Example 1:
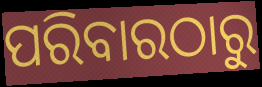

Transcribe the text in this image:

ପରିବାରଠାରୁ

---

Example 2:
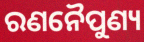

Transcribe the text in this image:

ରଣନୈପୁଣ୍ୟ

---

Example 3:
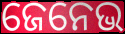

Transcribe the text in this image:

ଜେନେଭ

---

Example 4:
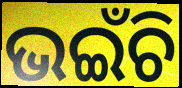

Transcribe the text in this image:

ଭଇଁଚି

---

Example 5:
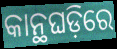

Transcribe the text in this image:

କାନ୍ଥଘଡ଼ିରେ